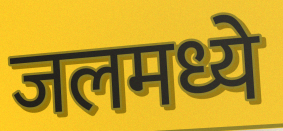
जलमध्ये